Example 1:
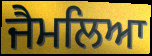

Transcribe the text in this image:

ਜੈਮਲਿਆ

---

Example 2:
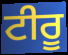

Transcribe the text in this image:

ਟੀਰੂ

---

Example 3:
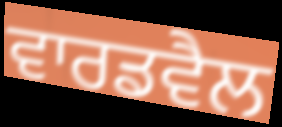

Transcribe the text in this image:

ਵਾਰਡਵੈਲ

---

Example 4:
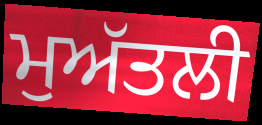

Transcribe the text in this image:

ਮੁਅੱਤਲੀ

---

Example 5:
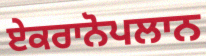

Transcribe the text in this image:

ਏਕਰਾਨੋਪਲਾਨ